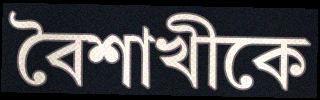
বৈশাখীকে